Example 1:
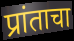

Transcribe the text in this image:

प्रांताचा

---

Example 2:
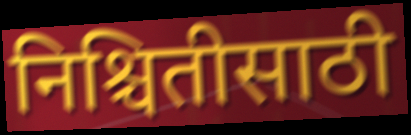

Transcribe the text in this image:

निश्चितीसाठी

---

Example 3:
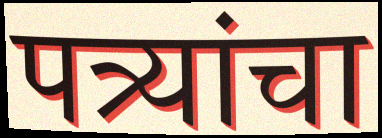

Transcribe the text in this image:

पत्र्यांचा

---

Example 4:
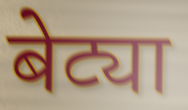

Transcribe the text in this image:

बेट्या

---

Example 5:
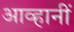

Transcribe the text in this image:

आव्हानीं